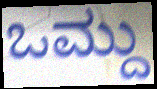
ಒಮ್ದು